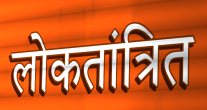
लोकतांत्रित